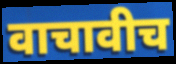
वाचावीच